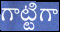
గాట్టిగా